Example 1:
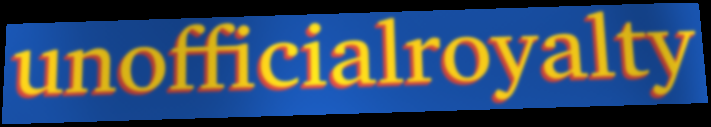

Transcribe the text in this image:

unofficialroyalty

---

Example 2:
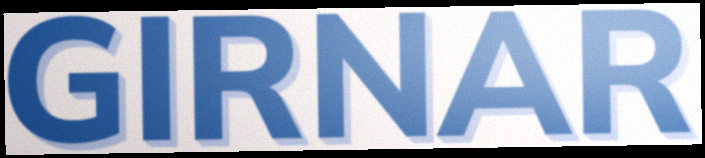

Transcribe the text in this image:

GIRNAR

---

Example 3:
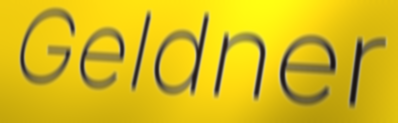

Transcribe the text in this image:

Geldner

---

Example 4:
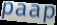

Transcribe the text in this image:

paap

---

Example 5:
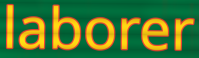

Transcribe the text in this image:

laborer